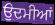
ਉਦਮੀਆਂ